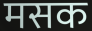
मसक